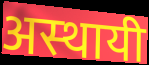
अस्थायी